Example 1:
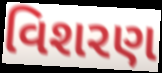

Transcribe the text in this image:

વિશરણ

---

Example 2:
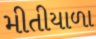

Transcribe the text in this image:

મીતીયાળા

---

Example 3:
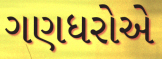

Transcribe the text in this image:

ગણધરોએ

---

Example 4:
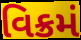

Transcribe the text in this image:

વિક્રમં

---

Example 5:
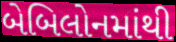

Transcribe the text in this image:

બેબિલોનમાંથી